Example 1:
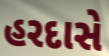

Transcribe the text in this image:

હરદાસે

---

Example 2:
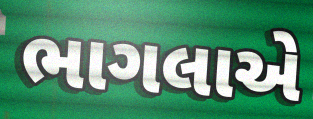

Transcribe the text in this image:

ભાગલાએ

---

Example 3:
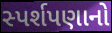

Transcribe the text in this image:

સ્પર્શપણાનો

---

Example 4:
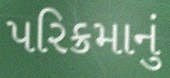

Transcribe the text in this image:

પરિક્રમાનું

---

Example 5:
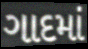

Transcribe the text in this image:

ગાદમાં